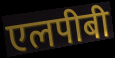
एलपीबी